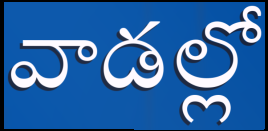
వాడల్లో